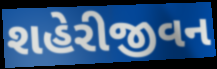
શહેરીજીવન